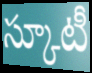
స్కూటీ